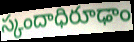
స్కందాధిరూఢాం